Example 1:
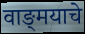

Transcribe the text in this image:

वाङ्‍मयाचे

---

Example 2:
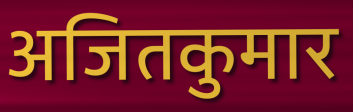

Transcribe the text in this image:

अजितकुमार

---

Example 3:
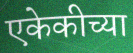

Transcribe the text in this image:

एकेकीच्या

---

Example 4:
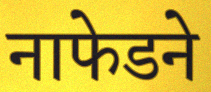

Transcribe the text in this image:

नाफेडने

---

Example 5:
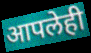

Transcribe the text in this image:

आपलेही